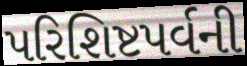
પરિશિષ્ટપર્વની